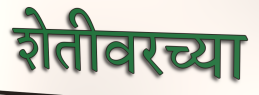
शेतीवरच्या